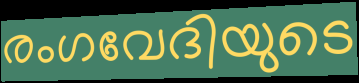
രംഗവേദിയുടെ